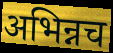
अभिन्नच